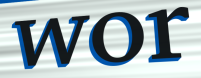
wor